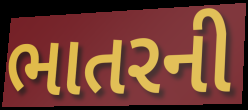
ભાતરની